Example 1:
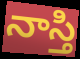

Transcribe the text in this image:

నాస్తి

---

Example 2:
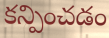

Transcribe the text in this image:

కన్పించడం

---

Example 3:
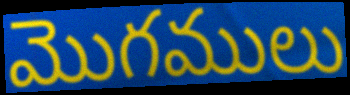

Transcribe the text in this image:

మొగములు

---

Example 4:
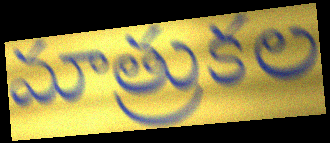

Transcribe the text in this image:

మాత్రుకల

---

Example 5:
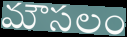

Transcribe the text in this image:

మౌసలం